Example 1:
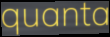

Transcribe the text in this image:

quanta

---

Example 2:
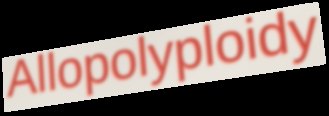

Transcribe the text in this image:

Allopolyploidy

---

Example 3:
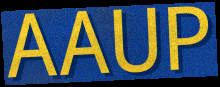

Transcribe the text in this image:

AAUP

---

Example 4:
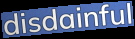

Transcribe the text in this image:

disdainful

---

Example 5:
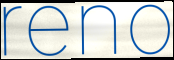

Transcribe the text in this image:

reno